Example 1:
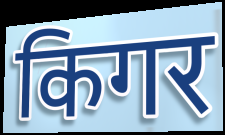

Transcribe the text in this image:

किगर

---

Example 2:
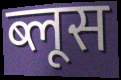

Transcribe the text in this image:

ब्लूस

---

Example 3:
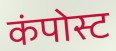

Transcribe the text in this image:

कंपोस्ट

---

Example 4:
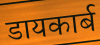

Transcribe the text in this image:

डायकार्ब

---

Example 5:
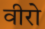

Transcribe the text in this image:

वीरो